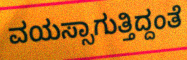
ವಯಸ್ಸಾಗುತ್ತಿದ್ದಂತೆ